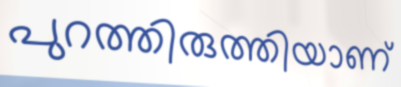
പുറത്തിരുത്തിയാണ്